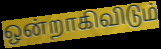
ஒன்றாகிவிடும்